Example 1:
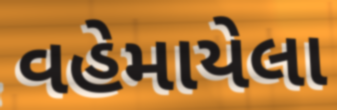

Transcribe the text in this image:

વહેમાયેલા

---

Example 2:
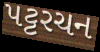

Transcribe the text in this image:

પટ્ટરચન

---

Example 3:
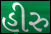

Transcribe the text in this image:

હીરુ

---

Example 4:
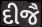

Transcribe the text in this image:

દીજૈ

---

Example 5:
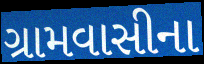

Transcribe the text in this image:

ગ્રામવાસીના